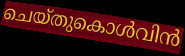
ചെയ്തുകൊൾവിൻ